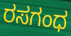
ರಸಗಂಧ